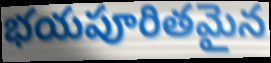
భయపూరితమైన